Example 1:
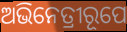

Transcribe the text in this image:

ଅଭିନେତ୍ରୀରୂପେ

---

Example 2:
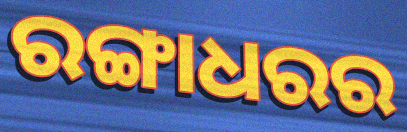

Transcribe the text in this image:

ରଙ୍ଗାଧରର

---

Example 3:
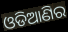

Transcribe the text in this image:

ଓଡିଆଣିର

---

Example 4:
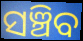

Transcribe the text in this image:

ସଞ୍ଚିବ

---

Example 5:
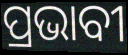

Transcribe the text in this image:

ପ୍ରଭାବୀ